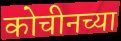
कोचीनच्या